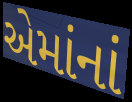
એમાંનાં